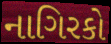
નાગિરકો